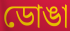
ডোঙা